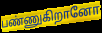
பண்ணுகிறானோ